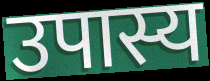
उपास्य